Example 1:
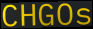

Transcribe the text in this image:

CHGOs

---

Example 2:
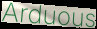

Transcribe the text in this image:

Arduous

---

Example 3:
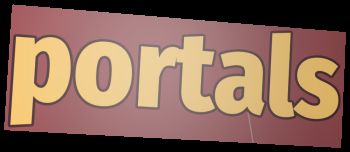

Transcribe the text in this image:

portals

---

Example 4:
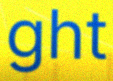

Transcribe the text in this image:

ght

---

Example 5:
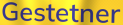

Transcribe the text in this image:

Gestetner